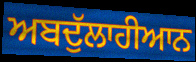
ਅਬਦੁੱਲਾਹੀਆਨ